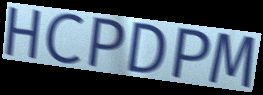
HCPDPM